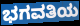
ಭಗವತಿಯ